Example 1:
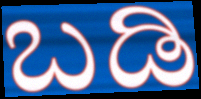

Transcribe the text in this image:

ಬಡಿ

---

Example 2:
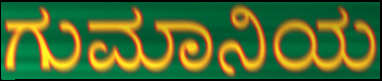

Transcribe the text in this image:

ಗುಮಾನಿಯ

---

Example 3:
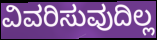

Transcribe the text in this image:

ವಿವರಿಸುವುದಿಲ್ಲ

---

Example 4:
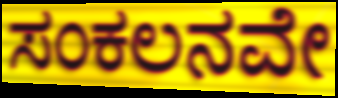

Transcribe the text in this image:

ಸಂಕಲನವೇ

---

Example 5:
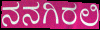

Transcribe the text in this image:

ನನಗಿರಲಿ